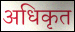
अधिकृत